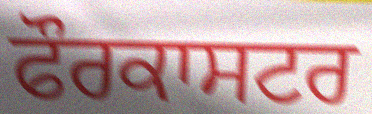
ਫੌਰਕਾਸਟਰ